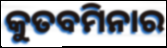
କୁତବମିନାର